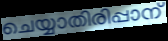
ചെയ്യാതിരിപ്പാന്